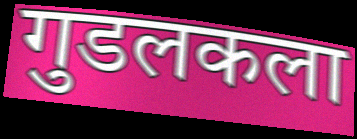
गुडलकला